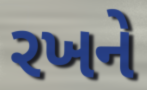
રખને